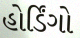
હોર્ડિંગો